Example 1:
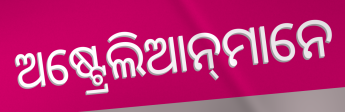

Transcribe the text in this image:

ଅଷ୍ଟ୍ରେଲିଆନ୍‌ମାନେ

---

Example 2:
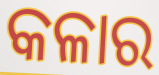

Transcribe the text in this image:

କଳାର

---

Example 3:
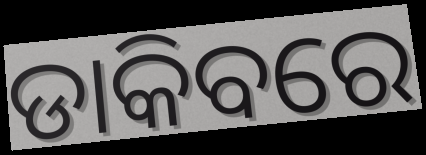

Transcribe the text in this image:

ଡାକିବରେ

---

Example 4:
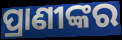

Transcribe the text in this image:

ପ୍ରାଣୀଙ୍କର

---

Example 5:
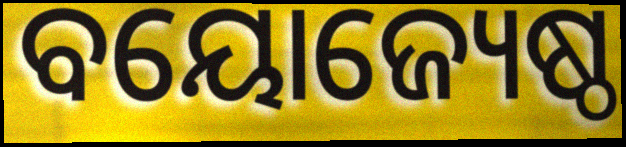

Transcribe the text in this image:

ବୟୋଜ୍ୟେଷ୍ଠ